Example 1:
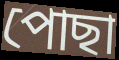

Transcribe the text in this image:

পোছা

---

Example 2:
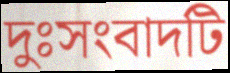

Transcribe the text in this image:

দুঃসংবাদটি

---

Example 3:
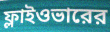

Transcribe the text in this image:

ফ্লাইওভারের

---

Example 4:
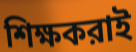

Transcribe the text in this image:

শিক্ষকরাই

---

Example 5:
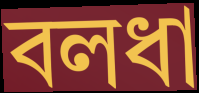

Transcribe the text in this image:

বলধা